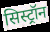
सिस्ट्रॉन